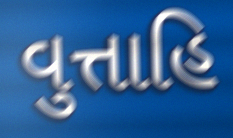
વુત્તાહિ